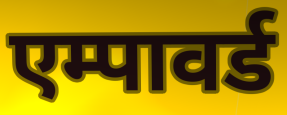
एम्पावर्ड